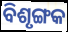
ବିଶୃଙ୍ଗକ